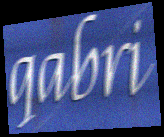
qabri